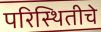
परिस्थितीचे